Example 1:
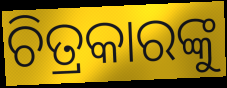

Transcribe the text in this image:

ଚିତ୍ରକାରଙ୍କୁ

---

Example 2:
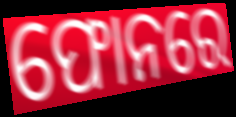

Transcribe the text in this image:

ଫୋନରେ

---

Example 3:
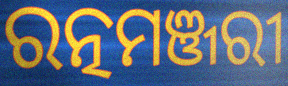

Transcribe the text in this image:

ରତ୍ନମଞ୍ଜରୀ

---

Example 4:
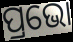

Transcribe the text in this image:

ପ୍ରଭୋ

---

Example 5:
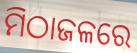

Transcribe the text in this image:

ମିଠାଜଳରେ